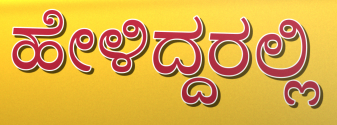
ಹೇಳಿದ್ದರಲ್ಲಿ